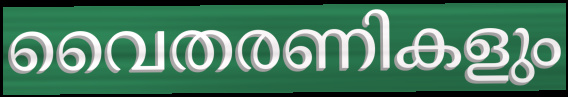
വൈതരണികളും